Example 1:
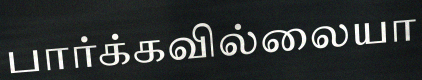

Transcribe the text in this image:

பார்க்கவில்லையா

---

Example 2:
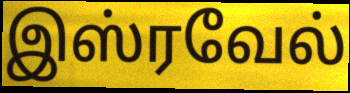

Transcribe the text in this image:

இஸ்ரவேல்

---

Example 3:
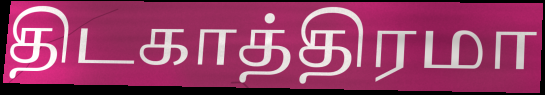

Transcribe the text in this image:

திடகாத்திரமா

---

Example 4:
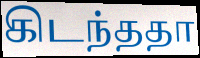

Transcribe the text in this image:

கிடந்ததா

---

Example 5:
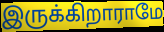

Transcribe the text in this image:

இருக்கிறாராமே